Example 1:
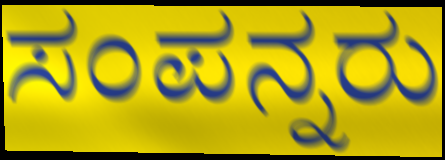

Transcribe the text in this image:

ಸಂಪನ್ನರು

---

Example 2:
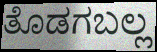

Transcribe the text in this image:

ತೊಡಗಬಲ್ಲ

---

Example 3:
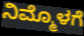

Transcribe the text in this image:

ನಿಮ್ಮೊಳಗೆ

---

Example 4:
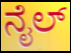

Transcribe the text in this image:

ನೈಲ್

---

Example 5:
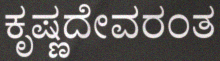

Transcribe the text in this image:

ಕೃಷ್ಣದೇವರಂತ